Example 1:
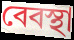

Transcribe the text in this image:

বেবস্থা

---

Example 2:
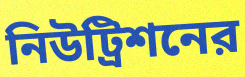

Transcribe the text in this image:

নিউট্রিশনের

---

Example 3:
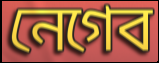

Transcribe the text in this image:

নেগেব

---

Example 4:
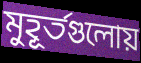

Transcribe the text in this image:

মুহূর্তগুলোয়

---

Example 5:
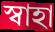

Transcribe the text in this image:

স্বাহা